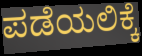
ಪಡೆಯಲಿಕ್ಕೆ